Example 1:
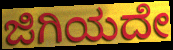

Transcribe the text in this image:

ಜಿಗಿಯದೇ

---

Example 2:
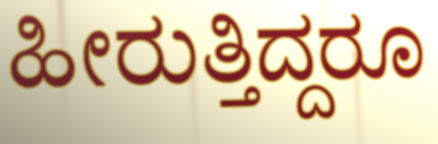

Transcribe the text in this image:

ಹೀರುತ್ತಿದ್ದರೂ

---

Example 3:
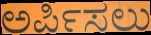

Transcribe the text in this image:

ಅರ್ಪಿಸಲು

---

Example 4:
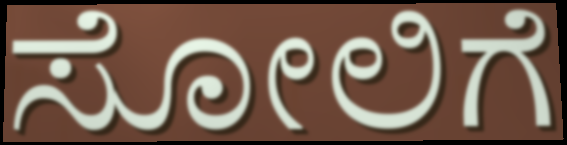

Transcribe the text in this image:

ಸೋಲಿಗೆ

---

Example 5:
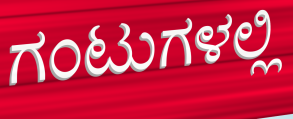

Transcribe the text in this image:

ಗಂಟುಗಳಲ್ಲಿ